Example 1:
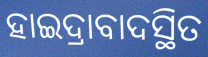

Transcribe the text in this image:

ହାଇଦ୍ରାବାଦସ୍ଥିତ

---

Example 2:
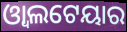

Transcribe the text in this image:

ଓ୍ୱାଲଟେୟାର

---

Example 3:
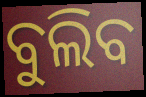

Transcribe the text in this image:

ବୁଲିବ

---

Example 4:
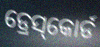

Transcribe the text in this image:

ଡ୍ରେସ୍‌କୋର୍ଡ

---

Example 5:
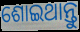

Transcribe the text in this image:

ଶୋଇଥାନ୍ତୁ